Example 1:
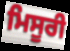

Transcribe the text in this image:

ਮਿਸੂਰੀ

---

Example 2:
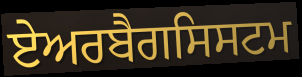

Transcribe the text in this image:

ਏਅਰਬੈਗਸਿਸਟਮ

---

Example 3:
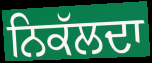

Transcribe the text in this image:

ਨਿਕੱਲਦਾ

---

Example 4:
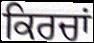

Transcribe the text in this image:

ਕਿਰਚਾਂ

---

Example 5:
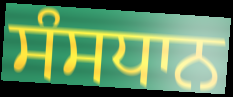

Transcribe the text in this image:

ਸੰਸਧਾਨ